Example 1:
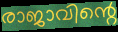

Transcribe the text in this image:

രാജാവിന്റെ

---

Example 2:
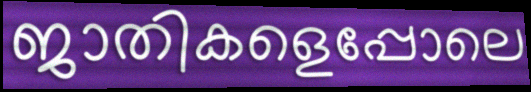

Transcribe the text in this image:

ജാതികളെപ്പോലെ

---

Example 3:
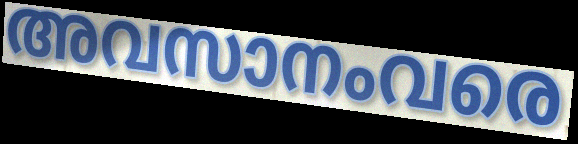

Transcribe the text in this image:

അവസാനംവരെ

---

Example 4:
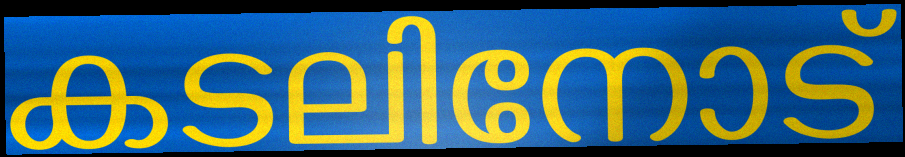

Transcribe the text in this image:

കടലിനോട്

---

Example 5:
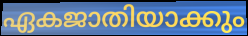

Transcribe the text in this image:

ഏകജാതിയാക്കും